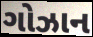
ગોઝાન